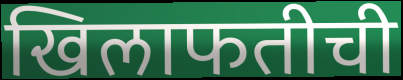
खिलाफतीची